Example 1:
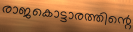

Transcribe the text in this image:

രാജകൊട്ടാരത്തിന്റെ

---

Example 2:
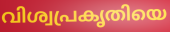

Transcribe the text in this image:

വിശ്വപ്രകൃതിയെ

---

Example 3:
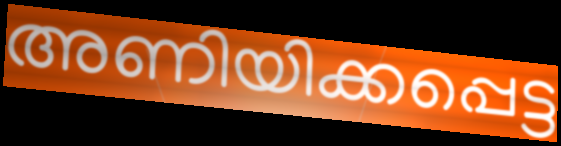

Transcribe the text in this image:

അണിയിക്കപ്പെട്ട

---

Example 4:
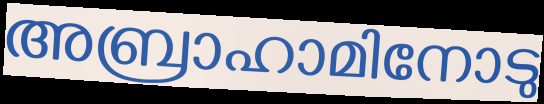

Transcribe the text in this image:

അബ്രാഹാമിനോടു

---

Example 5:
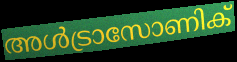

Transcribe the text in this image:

അൾട്രാസോണിക്